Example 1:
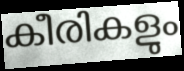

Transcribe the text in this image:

കീരികളും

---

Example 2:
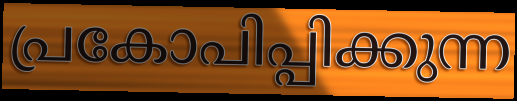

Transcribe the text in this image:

പ്രകോപിപ്പിക്കുന്ന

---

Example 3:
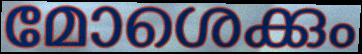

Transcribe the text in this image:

മോശെക്കും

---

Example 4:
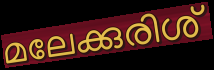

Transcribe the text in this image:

മലേക്കുരിശ്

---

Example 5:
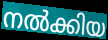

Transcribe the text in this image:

നൽക്കിയ